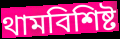
থামবিশিষ্ট